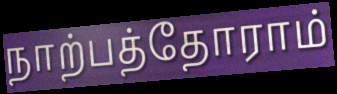
நாற்பத்தோராம்